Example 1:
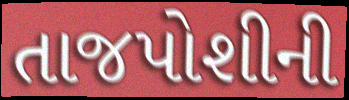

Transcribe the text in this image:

તાજપોશીની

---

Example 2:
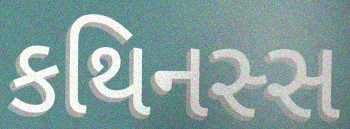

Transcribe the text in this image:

કથિનસ્સ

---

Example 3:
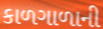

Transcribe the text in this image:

કાળગાળાની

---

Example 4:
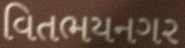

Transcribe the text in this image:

વિતભયનગર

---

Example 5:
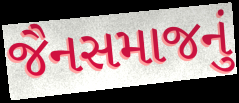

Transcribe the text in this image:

જૈનસમાજનું